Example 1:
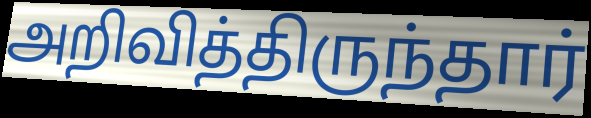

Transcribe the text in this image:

அறிவித்திருந்தார்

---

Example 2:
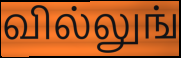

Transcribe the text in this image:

வில்லுங்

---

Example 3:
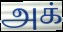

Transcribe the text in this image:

அக்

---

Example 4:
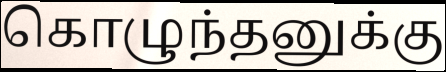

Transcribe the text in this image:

கொழுந்தனுக்கு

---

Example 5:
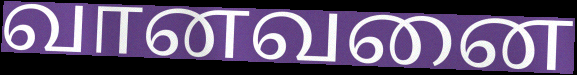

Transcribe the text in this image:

வானவனை